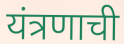
यंत्रणाची